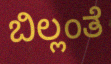
ಬಿಲ್ಲಂತೆ